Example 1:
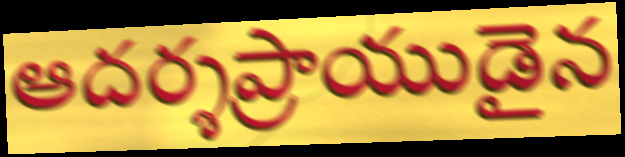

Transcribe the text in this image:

ఆదర్శప్రాయుడైన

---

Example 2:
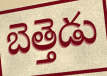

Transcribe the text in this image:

బెత్తెడు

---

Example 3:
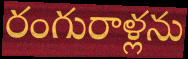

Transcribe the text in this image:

రంగురాళ్లను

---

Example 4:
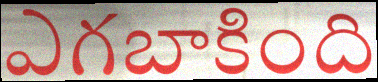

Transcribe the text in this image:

ఎగబాకింది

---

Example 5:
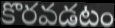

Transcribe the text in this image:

కొరవడటం